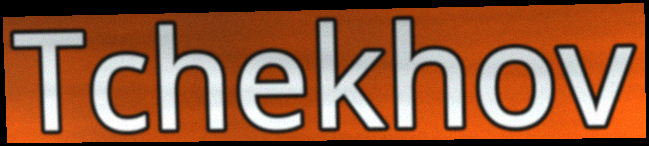
Tchekhov